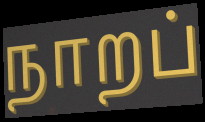
நாறப்